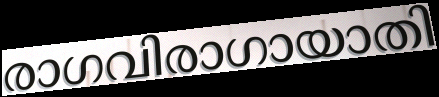
രാഗവിരാഗായാതി